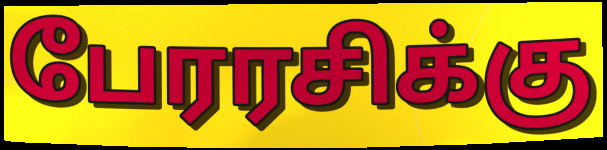
பேரரசிக்கு